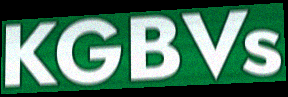
KGBVs